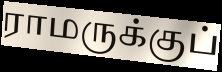
ராமருக்குப்